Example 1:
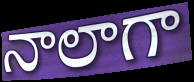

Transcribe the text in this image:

నాలాగా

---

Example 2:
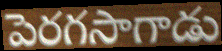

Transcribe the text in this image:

పెరగసాగాడు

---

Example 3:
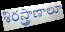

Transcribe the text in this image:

శిరస్త్రాణాలూ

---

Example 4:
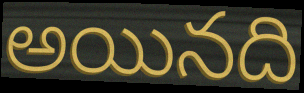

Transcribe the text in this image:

అయినది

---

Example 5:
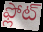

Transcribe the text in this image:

ఫ్లోట్